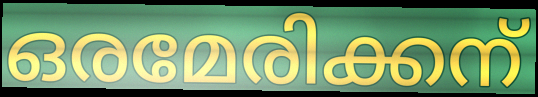
ഒരമേരിക്കന്